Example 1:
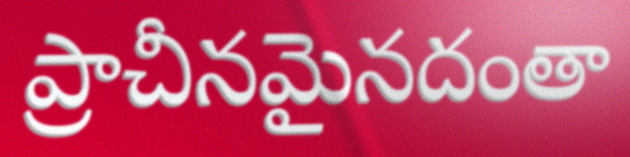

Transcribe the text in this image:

ప్రాచీనమైనదంతా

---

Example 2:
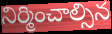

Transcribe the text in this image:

నిర్మించాల్సిన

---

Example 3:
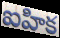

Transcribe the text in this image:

ఐహిక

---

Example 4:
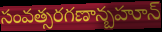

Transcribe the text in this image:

సంవత్సరగణాన్బహూన్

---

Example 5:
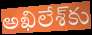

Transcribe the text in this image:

అఖిలేశ్‌కు